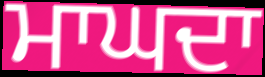
ਮਾਘਦਾ